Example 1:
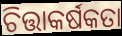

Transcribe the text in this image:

ଚିତ୍ତାକର୍ଷକତା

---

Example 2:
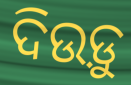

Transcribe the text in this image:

ଦିଉଡ଼ୁ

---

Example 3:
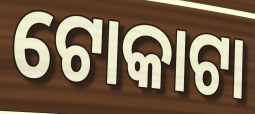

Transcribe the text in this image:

ଟୋକାଟା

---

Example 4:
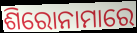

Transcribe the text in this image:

ଶିରୋନାମାରେ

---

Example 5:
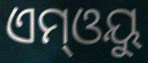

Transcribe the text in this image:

ଏମ୍ଓୟୁ